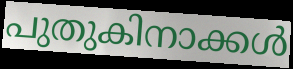
പുതുകിനാക്കൾ